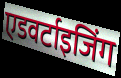
एडवर्टाइजिंग